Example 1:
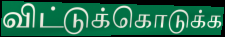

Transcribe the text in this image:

விட்டுக்கொடுக்க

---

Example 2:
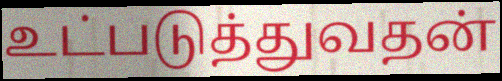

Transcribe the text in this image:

உட்படுத்துவதன்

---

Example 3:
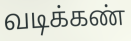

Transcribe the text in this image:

வடிக்கண்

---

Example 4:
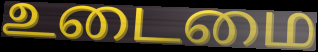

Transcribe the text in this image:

உடைமை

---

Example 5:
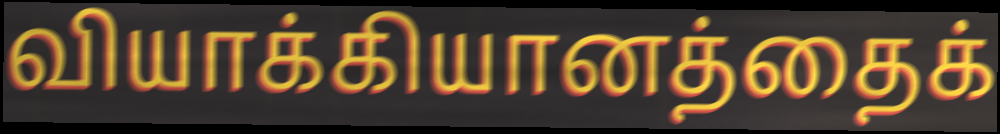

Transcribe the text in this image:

வியாக்கியானத்தைக்